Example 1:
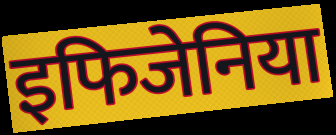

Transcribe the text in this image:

इफिजेनिया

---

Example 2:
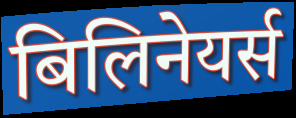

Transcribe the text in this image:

बिलिनेयर्स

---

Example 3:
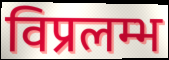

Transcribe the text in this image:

विप्रलम्भ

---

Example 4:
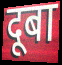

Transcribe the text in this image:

दूबा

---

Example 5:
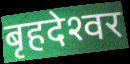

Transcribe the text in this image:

बृहदेश्वर